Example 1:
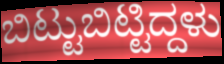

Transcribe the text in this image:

ಬಿಟ್ಟುಬಿಟ್ಟಿದ್ದಳು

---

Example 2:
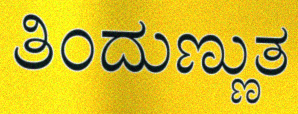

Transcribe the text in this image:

ತಿಂದುಣ್ಣುತ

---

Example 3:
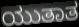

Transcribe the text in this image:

ಯುತಾತ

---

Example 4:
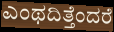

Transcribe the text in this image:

ಎಂಥದಿತ್ತೆಂದರೆ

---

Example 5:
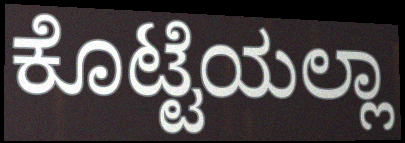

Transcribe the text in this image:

ಕೊಟ್ಟೆಯಲ್ಲಾ